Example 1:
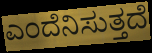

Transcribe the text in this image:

ಎಂದೆನಿಸುತ್ತದೆ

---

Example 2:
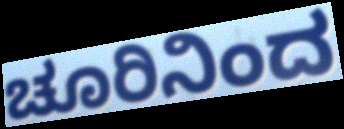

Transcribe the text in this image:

ಚೂರಿನಿಂದ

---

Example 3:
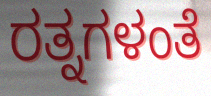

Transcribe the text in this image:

ರತ್ನಗಳಂತೆ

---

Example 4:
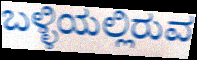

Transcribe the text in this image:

ಬಳ್ಳಿಯಲ್ಲಿರುವ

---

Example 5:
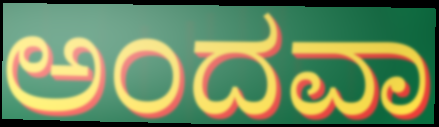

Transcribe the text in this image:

ಅಂದವಾ